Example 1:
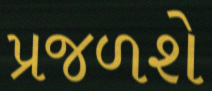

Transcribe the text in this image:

પ્રજળશે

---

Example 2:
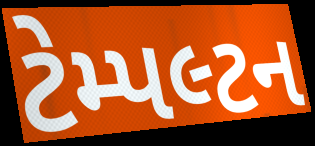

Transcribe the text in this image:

ટેમ્પલ્ટન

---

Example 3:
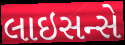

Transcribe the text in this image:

લાઇસન્સે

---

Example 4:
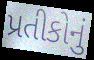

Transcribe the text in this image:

પ્રતીકોનું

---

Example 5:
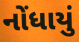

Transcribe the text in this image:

નોંધાયું